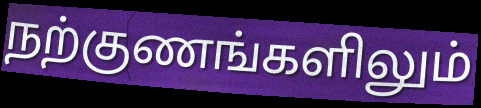
நற்குணங்களிலும்